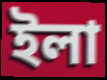
ইলা